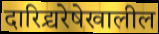
दारिद्र्यरेषेखालील